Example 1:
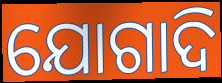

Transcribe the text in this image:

ଯୋଗାଦି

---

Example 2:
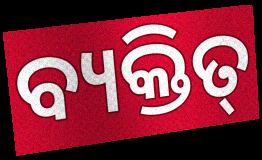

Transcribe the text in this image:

ବ୍ୟକ୍ତିତ୍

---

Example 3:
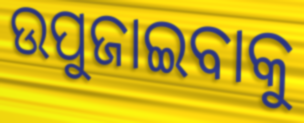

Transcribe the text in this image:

ଉପୁଜାଇବାକୁ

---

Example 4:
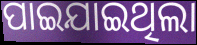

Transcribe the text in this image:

ପାଇଯାଇଥିଲା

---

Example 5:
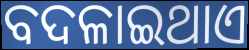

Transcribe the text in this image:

ବଦଳାଇଥାଏ